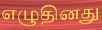
எழுதினது